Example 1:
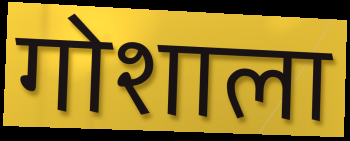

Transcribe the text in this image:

गोशाला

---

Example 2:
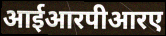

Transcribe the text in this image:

आईआरपीआरए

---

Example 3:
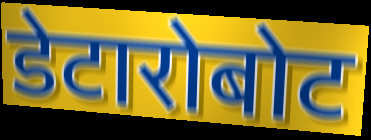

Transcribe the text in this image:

डेटारोबोट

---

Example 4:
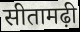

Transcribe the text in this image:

सीतामढ़ी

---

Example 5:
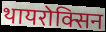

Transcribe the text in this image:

थायरोक्सिन